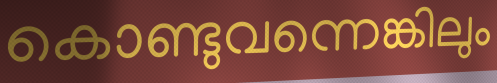
കൊണ്ടുവന്നെങ്കിലും